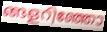
ങ്ങളറിഞ്ഞോ